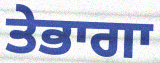
ਤੇਭਾਗਾ